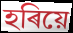
হৰিয়ে